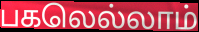
பகலெல்லாம்